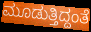
ಮೂಡುತ್ತಿದ್ದಂತೆ